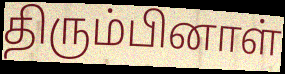
திரும்பினாள்